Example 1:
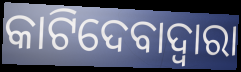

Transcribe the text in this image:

କାଟିଦେବାଦ୍ଵାରା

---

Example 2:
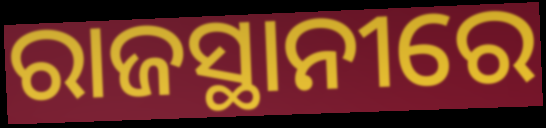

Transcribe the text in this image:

ରାଜସ୍ଥାନୀରେ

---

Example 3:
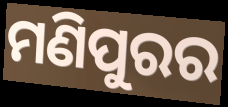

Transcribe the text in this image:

ମଣିପୁରର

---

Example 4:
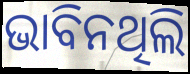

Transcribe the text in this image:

ଭାବିନଥିଲି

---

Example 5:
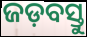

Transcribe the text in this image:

ଜଡ଼ବସ୍ତୁ